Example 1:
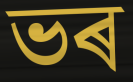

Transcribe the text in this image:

ভৰ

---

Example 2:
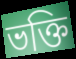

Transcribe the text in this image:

ভক্তি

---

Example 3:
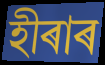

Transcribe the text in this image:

হীৰাৰ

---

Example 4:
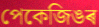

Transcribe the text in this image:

পেকেজিঙৰ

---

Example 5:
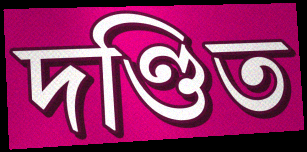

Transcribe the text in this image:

দণ্ডিত